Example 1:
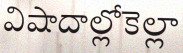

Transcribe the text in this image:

విషాదాల్లోకెల్లా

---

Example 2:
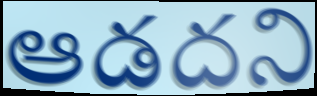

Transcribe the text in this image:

ఆడదని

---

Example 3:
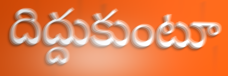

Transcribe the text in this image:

దిద్దుకుంటూ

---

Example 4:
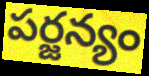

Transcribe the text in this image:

పర్జన్యం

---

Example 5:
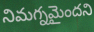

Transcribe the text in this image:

నిమగ్నమైందని